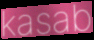
kasab